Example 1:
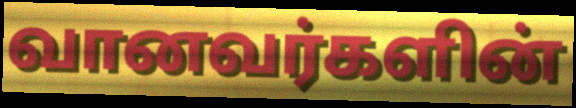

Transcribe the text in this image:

வானவர்களின்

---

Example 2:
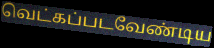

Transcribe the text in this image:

வெட்கப்படவேண்டிய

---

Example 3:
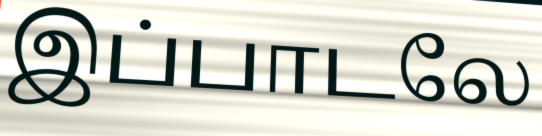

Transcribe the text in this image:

இப்பாடலே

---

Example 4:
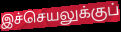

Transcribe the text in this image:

இச்செயலுக்குப்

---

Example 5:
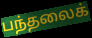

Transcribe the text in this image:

பந்தலைக்